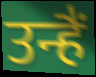
उन्‍हैं